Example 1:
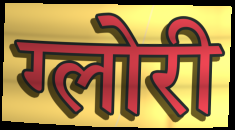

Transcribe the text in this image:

ग्लोरी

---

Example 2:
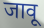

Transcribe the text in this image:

जावू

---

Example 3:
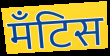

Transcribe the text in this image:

मँटिस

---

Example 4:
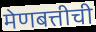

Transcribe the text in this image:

मेणबत्तीची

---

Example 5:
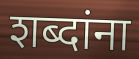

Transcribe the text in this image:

शब्दांना